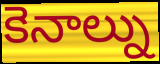
కెనాల్ను